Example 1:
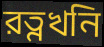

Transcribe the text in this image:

রত্নখনি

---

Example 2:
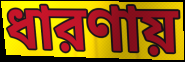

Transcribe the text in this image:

ধারণায়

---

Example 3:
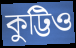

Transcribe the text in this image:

কুট্টিও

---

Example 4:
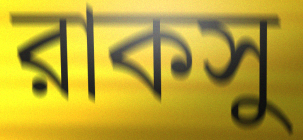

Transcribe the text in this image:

রাকসু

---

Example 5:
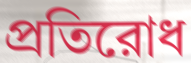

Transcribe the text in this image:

প্রতিরোধ